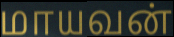
மாயவன்